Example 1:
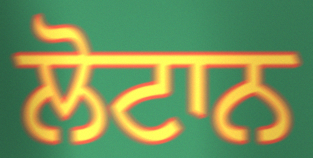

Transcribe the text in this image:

ਲੋਟਾਨ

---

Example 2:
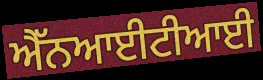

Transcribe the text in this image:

ਐੱਨਆਈਟੀਆਈ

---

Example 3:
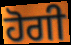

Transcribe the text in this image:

ਹੋਗੀ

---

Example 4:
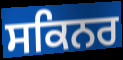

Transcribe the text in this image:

ਸਕਿਨਰ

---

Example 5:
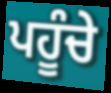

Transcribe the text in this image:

ਪਹੂੰਚੇ